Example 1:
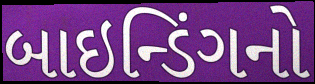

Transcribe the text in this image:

બાઇન્ડિંગનો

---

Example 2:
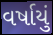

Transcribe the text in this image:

વર્ષાયું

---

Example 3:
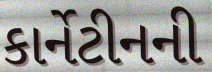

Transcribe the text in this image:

કાર્નેટીનની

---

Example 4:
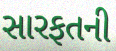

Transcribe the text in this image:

સારફતની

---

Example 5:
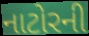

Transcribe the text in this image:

નાટોરની